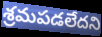
శ్రమపడలేదని